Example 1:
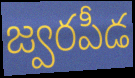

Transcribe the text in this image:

జ్వరపీడ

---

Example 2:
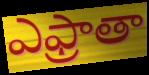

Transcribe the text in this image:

ఎఫ్రాతా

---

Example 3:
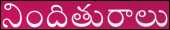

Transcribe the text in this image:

నిందితురాలు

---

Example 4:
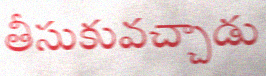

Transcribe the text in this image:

తీసుకువచ్చాడు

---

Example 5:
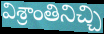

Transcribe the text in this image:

విశ్రాంతినిచ్చి